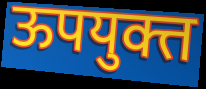
ऊपयुक्त